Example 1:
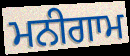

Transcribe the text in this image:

ਮਨੀਗਾਮ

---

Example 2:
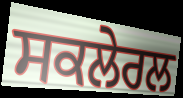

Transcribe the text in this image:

ਸਕਲੇਰਲ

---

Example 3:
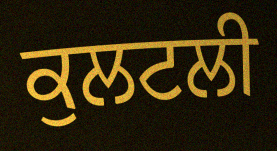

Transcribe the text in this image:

ਕੁਲਟਲੀ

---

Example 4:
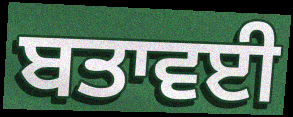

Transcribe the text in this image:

ਬਤਾਵਈ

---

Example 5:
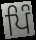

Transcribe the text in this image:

ਪਿੰ